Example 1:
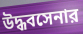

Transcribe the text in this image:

উদ্ধবসেনার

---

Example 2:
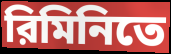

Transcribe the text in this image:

রিমিনিতে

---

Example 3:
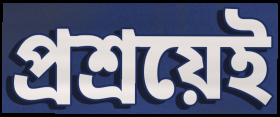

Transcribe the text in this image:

প্রশ্রয়েই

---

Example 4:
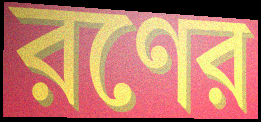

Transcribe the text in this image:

রণের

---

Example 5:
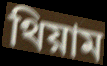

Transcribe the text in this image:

থিয়াম